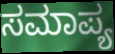
ಸಮಾಪ್ಯ